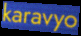
karavyo